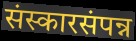
संस्कारसंपन्न